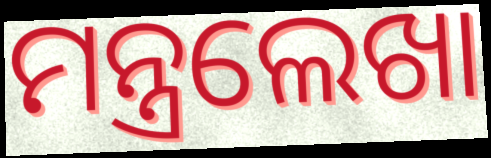
ମନ୍ତ୍ରଲେଖା